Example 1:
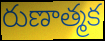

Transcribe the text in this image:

రుణాత్మక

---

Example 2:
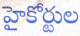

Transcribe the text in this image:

హైకోర్టుల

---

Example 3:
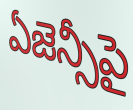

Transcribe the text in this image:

ఏజెన్సీపై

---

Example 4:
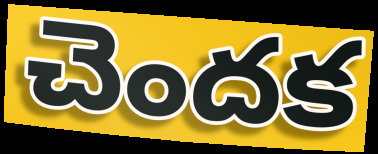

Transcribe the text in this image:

చెందక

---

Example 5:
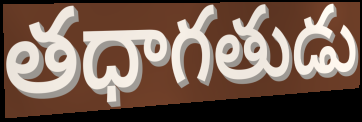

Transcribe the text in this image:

తధాగతుడు